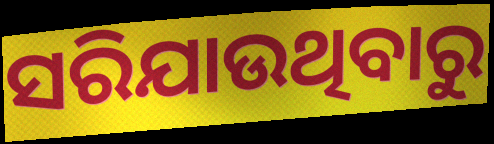
ସରିଯାଉଥିବାରୁ